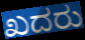
ಖದರು